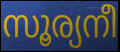
സൂര്യനീ